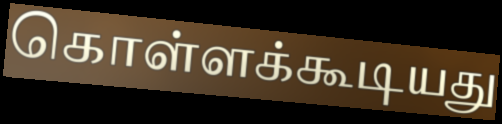
கொள்ளக்கூடியது